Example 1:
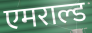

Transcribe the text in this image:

एमराल्‍ड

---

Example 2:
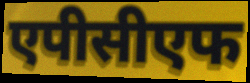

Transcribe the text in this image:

एपीसीएफ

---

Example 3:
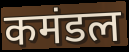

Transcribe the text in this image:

कमंडल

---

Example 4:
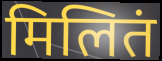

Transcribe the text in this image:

मिलितं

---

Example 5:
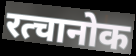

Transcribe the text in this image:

रत्चानोक